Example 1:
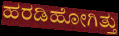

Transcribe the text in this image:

ಹರಡಿಹೋಗಿತ್ತು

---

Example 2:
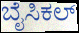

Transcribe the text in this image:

ಬೈಸಿಕಲ್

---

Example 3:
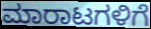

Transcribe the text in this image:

ಮಾರಾಟಗಳಿಗೆ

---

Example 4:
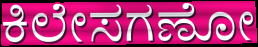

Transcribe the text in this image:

ಕಿಲೇಸಗಣೋ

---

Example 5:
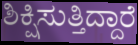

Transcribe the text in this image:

ಶಿಕ್ಷಿಸುತ್ತಿದ್ದಾರೆ